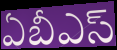
ఏబీఎస్